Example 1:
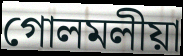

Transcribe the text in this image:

গোলমলীয়া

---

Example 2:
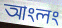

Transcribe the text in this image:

আংলং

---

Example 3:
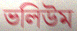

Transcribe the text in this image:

ভলিউম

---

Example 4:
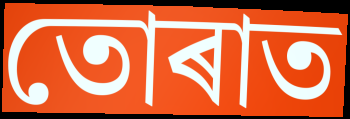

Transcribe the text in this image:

তোৰাত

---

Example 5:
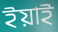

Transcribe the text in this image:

ইয়াই